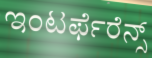
ಇಂಟರ್ಫೆರೆನ್ಸ್